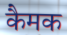
कैमक